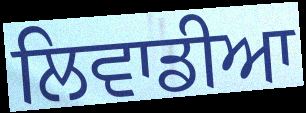
ਲਿਵਾਡੀਆ